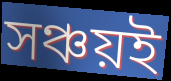
সঞ্চয়ই